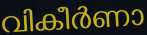
വികീർണാ